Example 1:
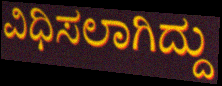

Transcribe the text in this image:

ವಿಧಿಸಲಾಗಿದ್ದು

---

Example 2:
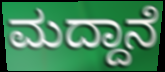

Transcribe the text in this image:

ಮದ್ದಾನೆ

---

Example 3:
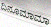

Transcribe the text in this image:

ದಿನೂಮಾಮಾ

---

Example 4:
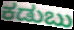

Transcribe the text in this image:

ಕಡುಬು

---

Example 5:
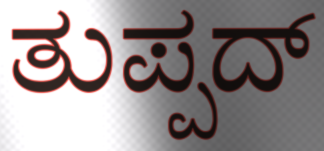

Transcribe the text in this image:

ತುಪ್ಪದ್